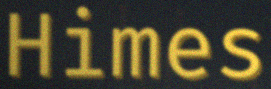
Himes